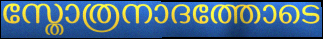
സ്തോത്രനാദത്തോടെ